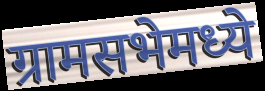
ग्रामसभेमध्ये